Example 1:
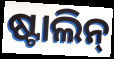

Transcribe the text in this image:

ଷ୍ଟାଲିନ୍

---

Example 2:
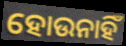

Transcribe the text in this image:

ହୋଉନାହିଁ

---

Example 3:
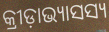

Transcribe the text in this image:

କ୍ରୀଡ଼ାଭ୍ୟାସସ୍ୟ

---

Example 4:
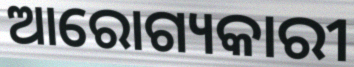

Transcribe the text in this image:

ଆରୋଗ୍ୟକାରୀ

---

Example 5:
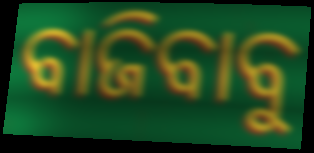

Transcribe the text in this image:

ବାଜିବାବୁ